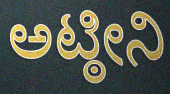
ಅಟ್ಠೀನಿ